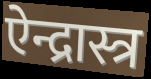
ऐन्द्रास्त्र